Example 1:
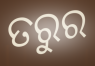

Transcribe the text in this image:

ତରୁର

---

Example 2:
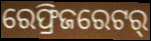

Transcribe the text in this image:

ରେଫ୍ରିଜରେଟର୍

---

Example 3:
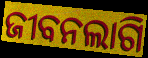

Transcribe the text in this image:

ଜୀବନଲାଗି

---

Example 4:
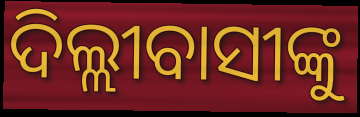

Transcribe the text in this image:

ଦିଲ୍ଲୀବାସୀଙ୍କୁ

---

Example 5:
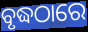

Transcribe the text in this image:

ବୃଦ୍ଧଠାରେ